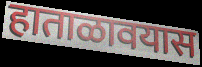
हाताळावयास